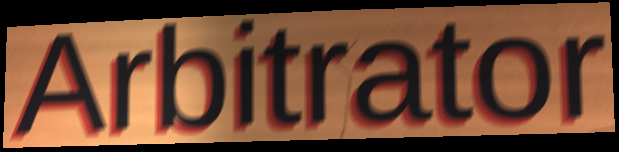
Arbitrator